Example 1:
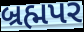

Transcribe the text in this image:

બ્રહ્મપર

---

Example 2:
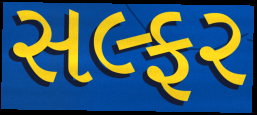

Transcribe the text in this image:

સલ્ફર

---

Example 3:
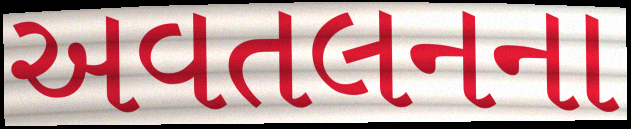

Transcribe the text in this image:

અવતલનના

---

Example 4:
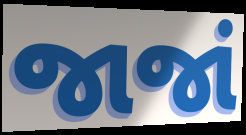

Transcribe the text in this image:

જાજાં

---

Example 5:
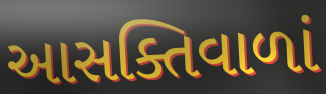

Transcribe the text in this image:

આસક્તિવાળાં